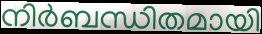
നിർബന്ധിതമായി